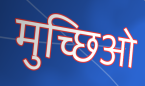
मुच्छिओ